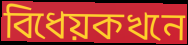
বিধেয়কখনে